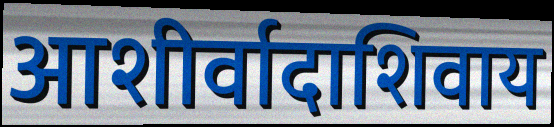
आशीर्वादाशिवाय